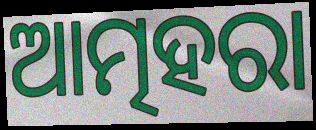
ଆତ୍ମହରା